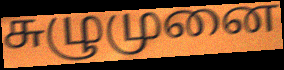
சுழுமுனை